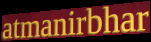
atmanirbhar